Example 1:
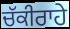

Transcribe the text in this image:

ਚੱਕੀਰਾਹੇ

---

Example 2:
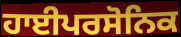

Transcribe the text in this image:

ਹਾਈਪਰਸੋਨਿਕ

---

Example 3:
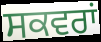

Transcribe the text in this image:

ਸਕਵਰਾਂ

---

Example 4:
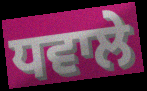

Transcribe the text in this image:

ਧਵਾਲੇ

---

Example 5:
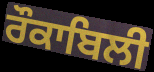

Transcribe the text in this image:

ਰੌਕਾਬਿਲੀ